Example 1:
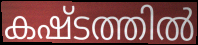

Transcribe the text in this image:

കഷ്ടത്തിൽ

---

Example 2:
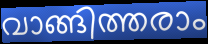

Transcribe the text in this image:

വാങ്ങിത്തരാം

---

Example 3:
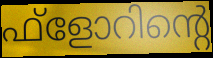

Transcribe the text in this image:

ഫ്ളോറിന്റെ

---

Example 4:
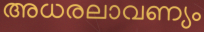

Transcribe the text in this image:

അധരലാവണ്യം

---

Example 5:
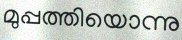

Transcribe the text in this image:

മുപ്പത്തിയൊന്നു